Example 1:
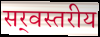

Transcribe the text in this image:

सर्वस्तरीय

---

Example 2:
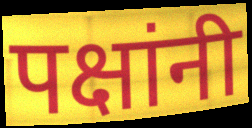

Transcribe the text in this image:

पक्षांनी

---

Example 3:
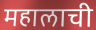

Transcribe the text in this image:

महालाची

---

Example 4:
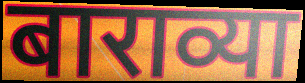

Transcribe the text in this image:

बाराव्या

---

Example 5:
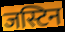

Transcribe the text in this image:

जस्टिन